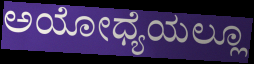
ಅಯೋಧ್ಯೆಯಲ್ಲೂ